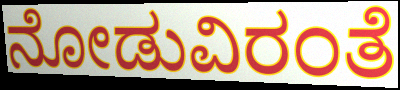
ನೋಡುವಿರಂತೆ